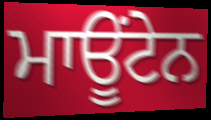
ਮਾਊਂਟੇਨ